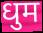
धुम